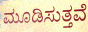
ಮೂಡಿಸುತ್ತವೆ